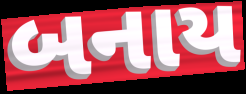
બનાય